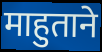
माहुताने